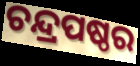
ଚନ୍ଦ୍ରପଷ୍ଠର